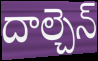
దాల్చెన్